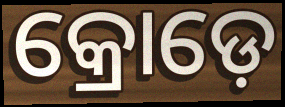
କ୍ରୋଡ଼େ